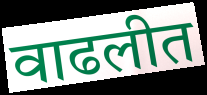
वाढलीत